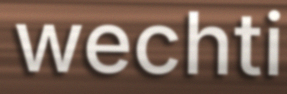
wechti